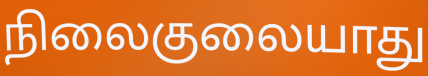
நிலைகுலையாது